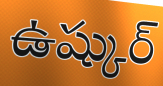
ఉష్కుర్